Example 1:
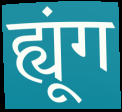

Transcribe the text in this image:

ह्यूंग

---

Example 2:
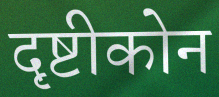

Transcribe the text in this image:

दृष्टीकोन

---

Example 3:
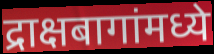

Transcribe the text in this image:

द्राक्षबागांमध्ये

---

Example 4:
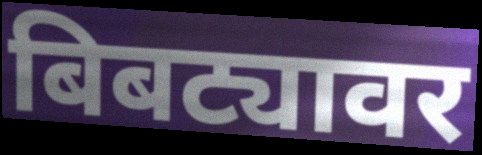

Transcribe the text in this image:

बिबट्यावर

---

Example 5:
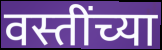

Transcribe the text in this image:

वस्तींच्या